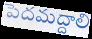
పెదమద్దాలి